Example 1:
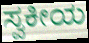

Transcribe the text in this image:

ಸ್ವಕೀಯ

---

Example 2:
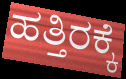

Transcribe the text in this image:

ಹತ್ತಿರಕ್ಕೆ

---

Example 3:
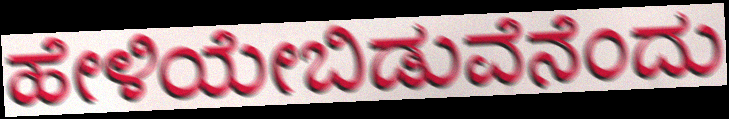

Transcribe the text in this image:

ಹೇಳಿಯೇಬಿಡುವೆನೆಂದು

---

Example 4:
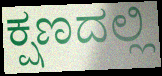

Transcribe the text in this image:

ಕ್ಷಣದಲ್ಲಿ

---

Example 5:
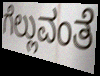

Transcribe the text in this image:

ಗೆಲ್ಲುವಂತೆ